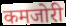
कमजोरी